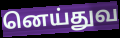
னெய்துவ